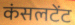
कंसलटेंट